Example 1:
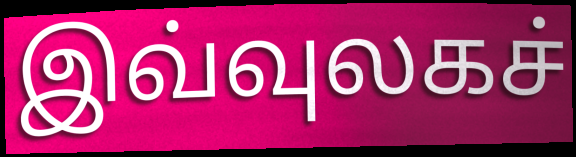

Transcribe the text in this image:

இவ்வுலகச்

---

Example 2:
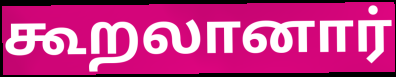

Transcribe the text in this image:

கூறலானார்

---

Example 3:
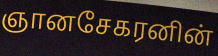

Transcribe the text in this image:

ஞானசேகரனின்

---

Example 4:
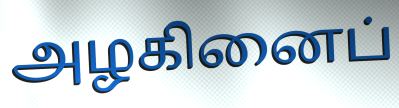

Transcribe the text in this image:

அழகினைப்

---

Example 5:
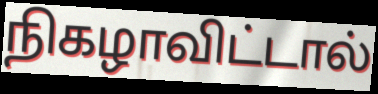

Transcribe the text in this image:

நிகழாவிட்டால்